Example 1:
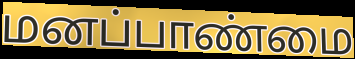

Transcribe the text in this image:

மனப்பாண்மை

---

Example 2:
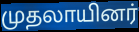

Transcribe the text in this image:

முதலாயினர்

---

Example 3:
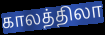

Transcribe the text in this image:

காலத்திலா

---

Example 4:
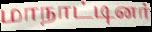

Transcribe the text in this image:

மாநாட்டினர்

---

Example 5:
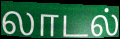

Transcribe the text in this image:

லாடல்